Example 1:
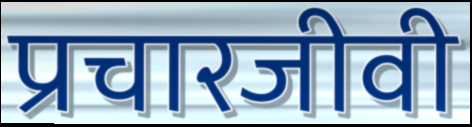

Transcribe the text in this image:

प्रचारजीवी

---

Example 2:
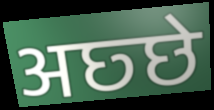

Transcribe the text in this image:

अछ्छे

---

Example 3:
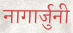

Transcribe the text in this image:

नागार्जुनी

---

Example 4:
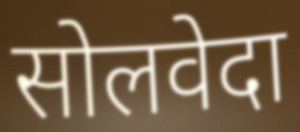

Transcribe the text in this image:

सोलवेदा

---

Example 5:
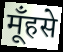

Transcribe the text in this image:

मूँहसे